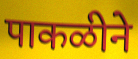
पाकळीने